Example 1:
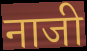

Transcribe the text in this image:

नाजी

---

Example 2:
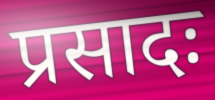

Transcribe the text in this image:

प्रसादः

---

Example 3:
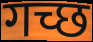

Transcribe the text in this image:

गच्छ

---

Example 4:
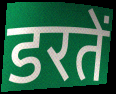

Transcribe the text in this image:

डरतें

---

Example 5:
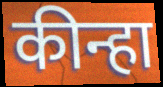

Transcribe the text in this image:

कीन्हा